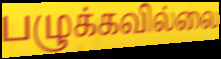
பழுக்கவில்லை